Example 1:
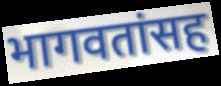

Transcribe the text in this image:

भागवतांसह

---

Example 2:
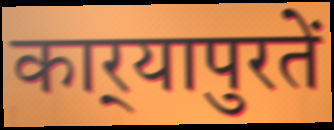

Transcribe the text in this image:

कार्यापुरतें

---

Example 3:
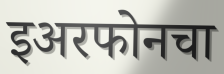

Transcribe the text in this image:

इअरफोनचा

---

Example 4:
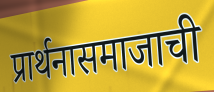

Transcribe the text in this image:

प्रार्थनासमाजाची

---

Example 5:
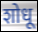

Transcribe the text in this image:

शोधू